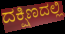
ದಕ್ಷಿಣದಲ್ಲಿ